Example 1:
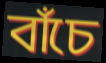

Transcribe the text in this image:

বাঁচে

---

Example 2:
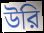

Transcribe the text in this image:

উরি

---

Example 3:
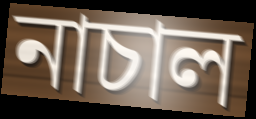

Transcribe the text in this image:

নাচাল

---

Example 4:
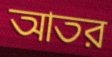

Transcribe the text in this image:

আতর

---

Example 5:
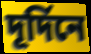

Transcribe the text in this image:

দূর্দিনে